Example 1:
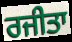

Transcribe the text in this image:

ਰਜੀਤਾ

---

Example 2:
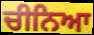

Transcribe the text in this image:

ਚੀਨਿਆ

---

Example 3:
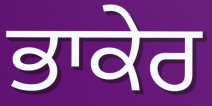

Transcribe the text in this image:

ਭਾਕੇਰ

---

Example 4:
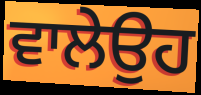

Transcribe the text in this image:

ਵਾਲੇਉਹ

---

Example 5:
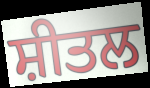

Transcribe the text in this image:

ਸ਼ੀਤਲ